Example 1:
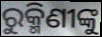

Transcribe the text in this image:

ରୁକ୍ମିଣୀଙ୍କୁ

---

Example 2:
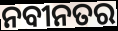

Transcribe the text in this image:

ନବୀନତର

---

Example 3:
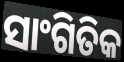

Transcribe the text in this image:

ସାଂଗିତିକ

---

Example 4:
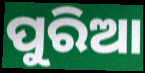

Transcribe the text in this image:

ପୁରିଆ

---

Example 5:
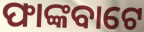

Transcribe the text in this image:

ଫାଙ୍କବାଟେ